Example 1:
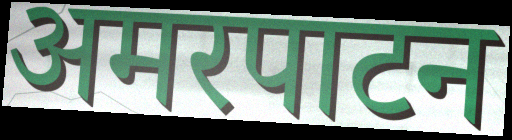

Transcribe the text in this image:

अमरपाटन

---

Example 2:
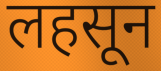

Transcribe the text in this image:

लहसून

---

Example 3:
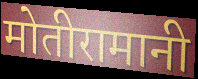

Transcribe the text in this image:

मोतीरामानी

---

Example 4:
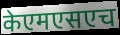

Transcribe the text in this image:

केएमएसएच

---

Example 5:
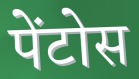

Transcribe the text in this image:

पेंटोस